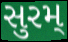
સુરમ્